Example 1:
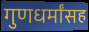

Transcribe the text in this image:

गुणधर्मांसह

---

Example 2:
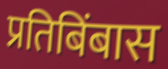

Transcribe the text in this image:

प्रतिबिंबास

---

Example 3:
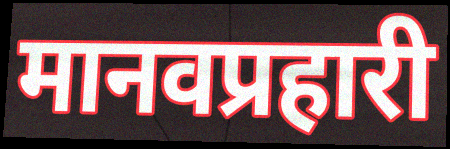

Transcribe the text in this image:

मानवप्रहारी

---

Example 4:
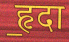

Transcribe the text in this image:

हृ॒दा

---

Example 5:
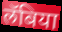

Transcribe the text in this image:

लॅबिया